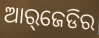
ଆର୍‌ଜେଡିର